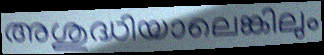
അശുദ്ധിയാലെങ്കിലും